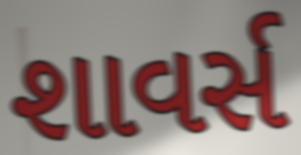
શાવર્સ